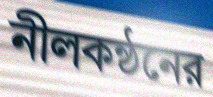
নীলকন্ঠনের